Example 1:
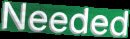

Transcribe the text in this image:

Needed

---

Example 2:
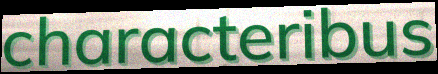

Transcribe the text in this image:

characteribus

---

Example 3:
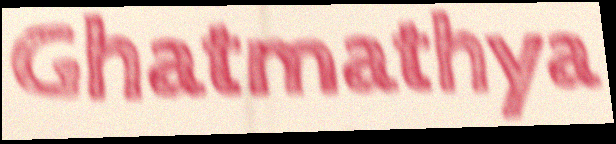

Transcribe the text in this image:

Ghatmathya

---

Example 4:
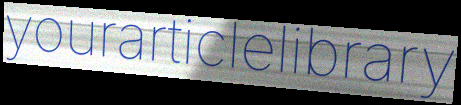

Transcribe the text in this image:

yourarticlelibrary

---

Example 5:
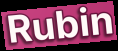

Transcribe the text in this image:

Rubin